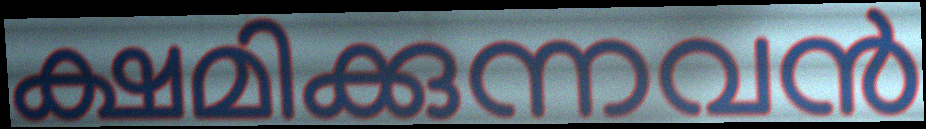
ക്ഷമിക്കുന്നവൻ